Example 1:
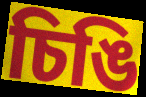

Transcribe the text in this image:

চিঙি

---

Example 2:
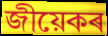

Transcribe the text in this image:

জীয়েকৰ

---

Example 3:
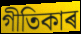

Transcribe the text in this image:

গীতিকাৰ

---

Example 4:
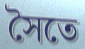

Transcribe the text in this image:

সৈতে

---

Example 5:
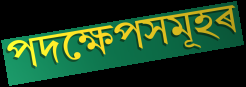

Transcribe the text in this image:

পদক্ষেপসমূহৰ